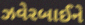
ઝવેરબાઈને